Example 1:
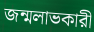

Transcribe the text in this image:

জন্মলাভকারী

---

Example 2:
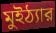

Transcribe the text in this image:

মুইঠ্যার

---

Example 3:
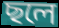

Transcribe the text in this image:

ছলে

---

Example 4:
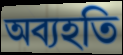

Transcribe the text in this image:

অব্যহতি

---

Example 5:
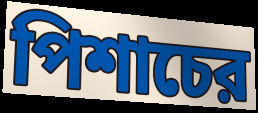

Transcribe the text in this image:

পিশাচের